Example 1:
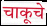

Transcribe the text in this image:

चाकूचे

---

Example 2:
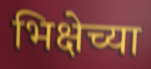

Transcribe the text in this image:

भिक्षेच्या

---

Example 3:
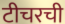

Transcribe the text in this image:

टीचरची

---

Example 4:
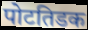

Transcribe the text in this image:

पोटतिडक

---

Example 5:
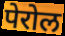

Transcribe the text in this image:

पेरोल